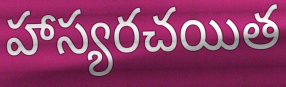
హాస్యరచయిత